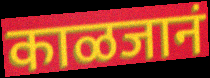
काळजानं